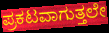
ಪ್ರಕಟವಾಗುತ್ತಲೇ